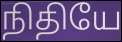
நிதியே